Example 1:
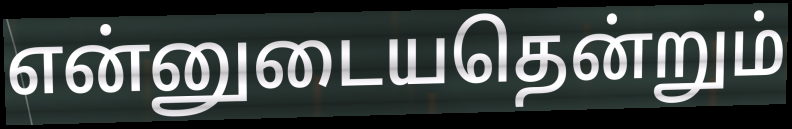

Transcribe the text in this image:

என்னுடையதென்றும்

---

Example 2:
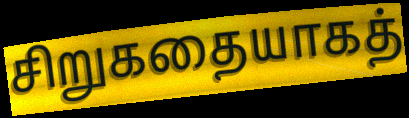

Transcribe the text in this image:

சிறுகதையாகத்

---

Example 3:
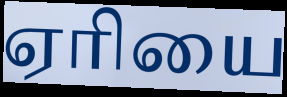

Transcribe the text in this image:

ஏரியை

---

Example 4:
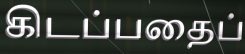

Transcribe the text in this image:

கிடப்பதைப்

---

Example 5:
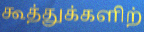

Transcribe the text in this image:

கூத்துக்களிற்